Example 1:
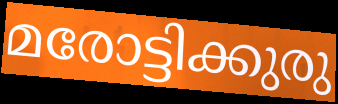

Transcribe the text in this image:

മരോട്ടിക്കുരു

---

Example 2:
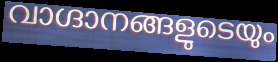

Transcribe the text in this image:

വാഗ്ദാനങ്ങളുടെയും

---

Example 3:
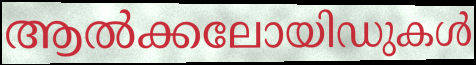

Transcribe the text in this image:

ആൽക്കലോയിഡുകൾ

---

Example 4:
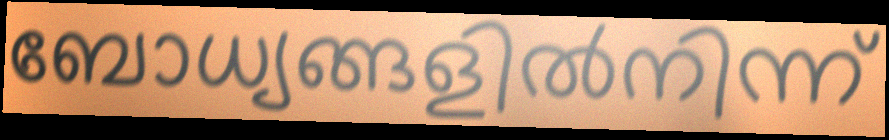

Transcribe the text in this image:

ബോധ്യങ്ങളിൽനിന്ന്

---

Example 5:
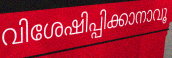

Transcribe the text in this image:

വിശേഷിപ്പിക്കാനാവൂ